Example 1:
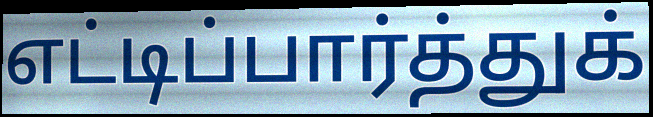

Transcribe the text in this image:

எட்டிப்பார்த்துக்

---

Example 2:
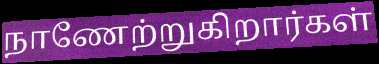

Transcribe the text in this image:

நாணேற்றுகிறார்கள்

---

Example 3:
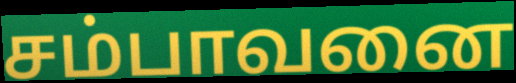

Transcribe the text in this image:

சம்பாவனை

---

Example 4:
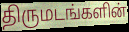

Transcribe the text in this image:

திருமடங்களின்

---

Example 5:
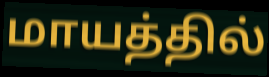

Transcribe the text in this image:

மாயத்தில்